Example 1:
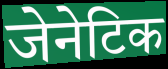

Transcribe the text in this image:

जेनेटिक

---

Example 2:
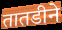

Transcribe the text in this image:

तातडीने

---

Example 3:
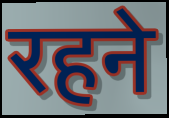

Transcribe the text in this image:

रहने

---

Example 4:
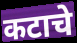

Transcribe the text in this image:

कटाचे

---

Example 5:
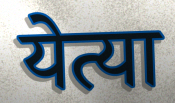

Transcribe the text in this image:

येत्या